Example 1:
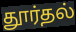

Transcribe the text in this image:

தூர்தல்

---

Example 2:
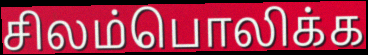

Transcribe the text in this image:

சிலம்பொலிக்க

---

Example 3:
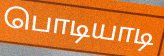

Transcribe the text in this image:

பொடியாடி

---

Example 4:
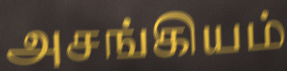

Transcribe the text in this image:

அசங்கியம்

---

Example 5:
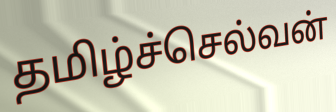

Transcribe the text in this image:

தமிழ்ச்செல்வன்